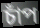
চাঁপ